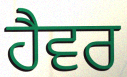
ਹੈਵਰ